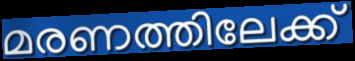
മരണത്തിലേക്ക്